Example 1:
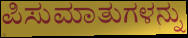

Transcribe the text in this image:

ಪಿಸುಮಾತುಗಳನ್ನು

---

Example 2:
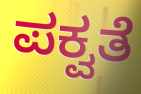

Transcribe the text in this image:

ಪಕ್ವತೆ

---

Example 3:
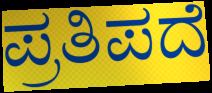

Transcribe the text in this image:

ಪ್ರತಿಪದೆ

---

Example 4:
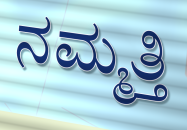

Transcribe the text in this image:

ನಮ್ಮತ್ತಿ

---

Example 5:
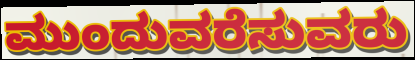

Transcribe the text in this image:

ಮುಂದುವರೆಸುವರು